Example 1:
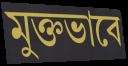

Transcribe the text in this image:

মুক্তভাবে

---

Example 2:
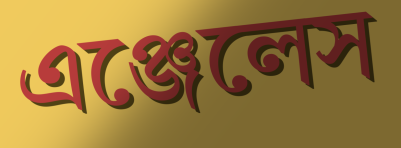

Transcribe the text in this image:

এঞ্জেলেস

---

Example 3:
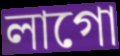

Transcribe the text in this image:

লাগো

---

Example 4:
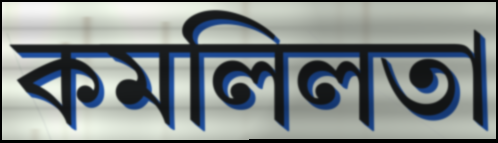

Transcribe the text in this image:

কমলিলতা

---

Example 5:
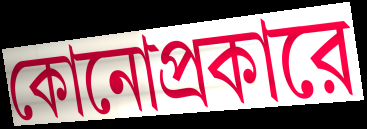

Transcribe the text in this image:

কোনোপ্রকারে